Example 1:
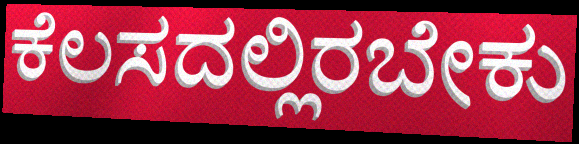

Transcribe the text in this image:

ಕೆಲಸದಲ್ಲಿರಬೇಕು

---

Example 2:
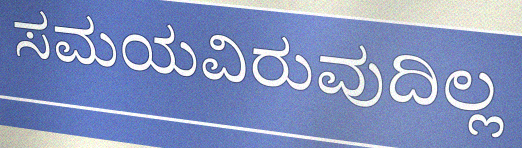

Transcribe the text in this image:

ಸಮಯವಿರುವುದಿಲ್ಲ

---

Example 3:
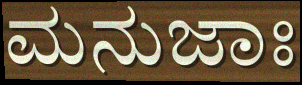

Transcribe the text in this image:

ಮನುಜಾಃ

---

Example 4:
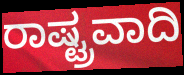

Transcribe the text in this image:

ರಾಷ್ಟ್ರವಾದಿ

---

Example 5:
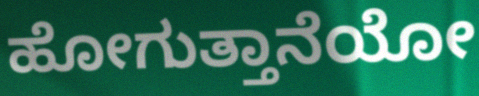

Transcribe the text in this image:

ಹೋಗುತ್ತಾನೆಯೋ